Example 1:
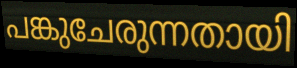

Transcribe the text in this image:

പങ്കുചേരുന്നതായി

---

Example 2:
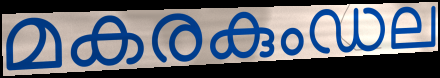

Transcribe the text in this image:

മകരകുംഡല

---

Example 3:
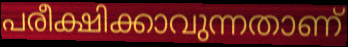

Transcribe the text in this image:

പരീക്ഷിക്കാവുന്നതാണ്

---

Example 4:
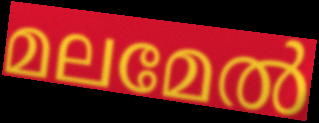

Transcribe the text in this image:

മലമേൽ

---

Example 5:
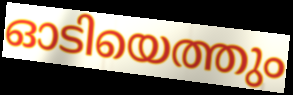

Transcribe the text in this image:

ഓടിയെത്തും